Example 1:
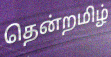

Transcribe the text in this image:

தென்றமிழ்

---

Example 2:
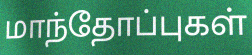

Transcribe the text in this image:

மாந்தோப்புகள்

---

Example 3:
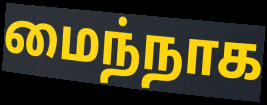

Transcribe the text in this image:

மைந்நாக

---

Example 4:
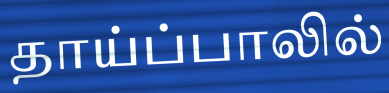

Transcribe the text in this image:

தாய்ப்பாலில்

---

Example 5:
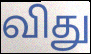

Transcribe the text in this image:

விது